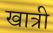
खात्री